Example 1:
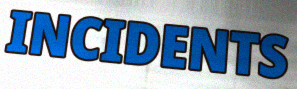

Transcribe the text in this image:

INCIDENTS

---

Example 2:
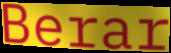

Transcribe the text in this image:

Berar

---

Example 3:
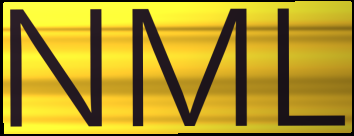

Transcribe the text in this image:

NML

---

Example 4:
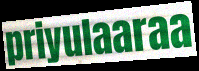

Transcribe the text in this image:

priyulaaraa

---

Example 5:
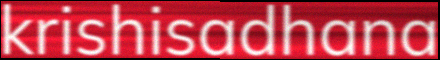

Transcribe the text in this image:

krishisadhana